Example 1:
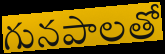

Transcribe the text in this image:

గునపాలతో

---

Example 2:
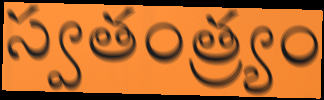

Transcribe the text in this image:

స్వతంత్ర్యం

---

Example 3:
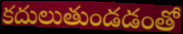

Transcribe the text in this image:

కదులుతుండడంతో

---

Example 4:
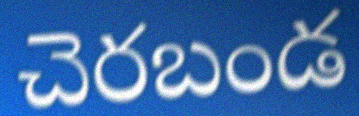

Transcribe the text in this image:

చెరబండ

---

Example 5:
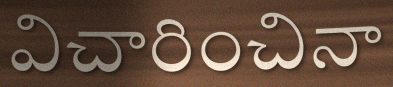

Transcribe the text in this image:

విచారించినా